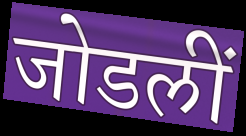
जोडलीं